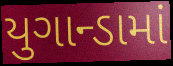
યુગાન્ડામાં